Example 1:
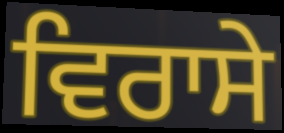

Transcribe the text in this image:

ਵਿਰਾਸੇ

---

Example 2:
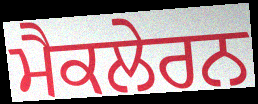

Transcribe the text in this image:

ਮੈਕਲੇਰਨ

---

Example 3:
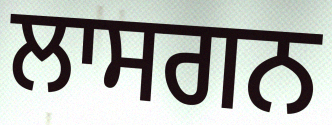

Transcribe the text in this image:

ਲਾਸਗਨ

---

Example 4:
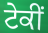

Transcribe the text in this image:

ਟੇਕੀਂ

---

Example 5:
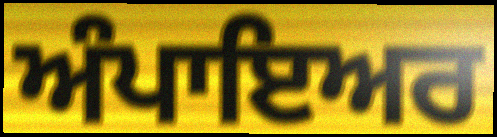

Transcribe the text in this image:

ਅੰਪਾਇਅਰ